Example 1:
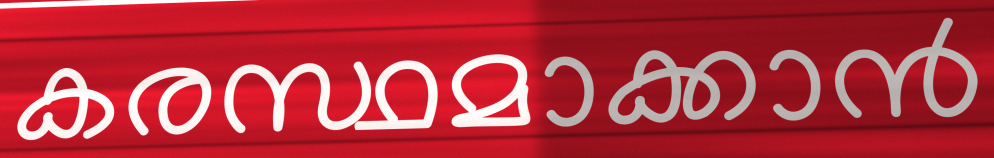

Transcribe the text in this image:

കരസ്ഥമാക്കാൻ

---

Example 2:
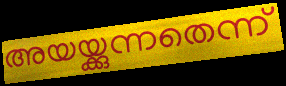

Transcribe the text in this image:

അയയ്ക്കുന്നതെന്ന്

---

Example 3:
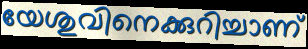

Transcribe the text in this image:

യേശുവിനെക്കുറിച്ചാണ്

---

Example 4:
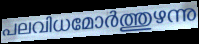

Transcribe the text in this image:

പലവിധമോർത്തുഴന്നു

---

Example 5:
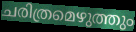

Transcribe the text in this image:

ചരിത്രമെഴുത്തും